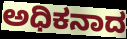
ಅಧಿಕನಾದ